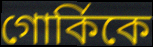
গোর্কিকে